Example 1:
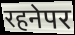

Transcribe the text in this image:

रहनेपर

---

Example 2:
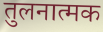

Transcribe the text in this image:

तुलनात्मक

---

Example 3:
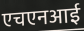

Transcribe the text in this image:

एचएनआई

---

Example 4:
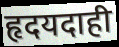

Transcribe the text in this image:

हृदयदाही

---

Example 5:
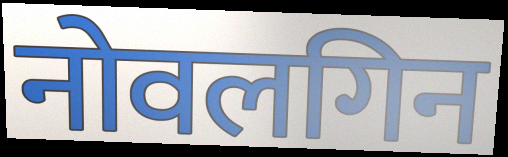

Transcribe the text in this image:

नोवलगिन